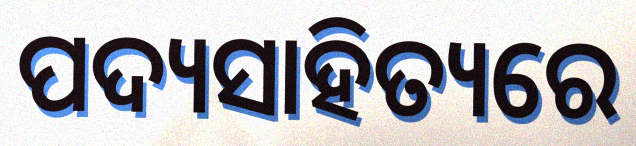
ପଦ୍ୟସାହିତ୍ୟରେ